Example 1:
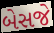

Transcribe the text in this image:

બેસજે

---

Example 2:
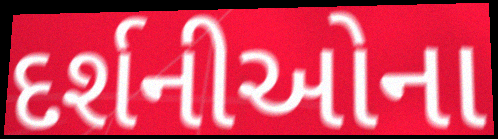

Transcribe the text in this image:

દર્શનીઓના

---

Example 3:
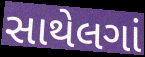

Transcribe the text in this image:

સાથેલગાં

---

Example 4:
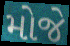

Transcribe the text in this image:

મોજે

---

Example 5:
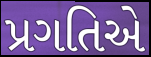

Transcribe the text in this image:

પ્રગતિએ